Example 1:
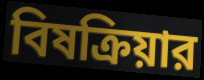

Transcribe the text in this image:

বিষক্রিয়ার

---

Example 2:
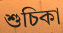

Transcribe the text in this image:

শুচিকা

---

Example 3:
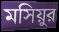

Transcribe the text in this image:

মসিয়ুর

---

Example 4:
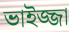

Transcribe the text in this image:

ভাইজ্জা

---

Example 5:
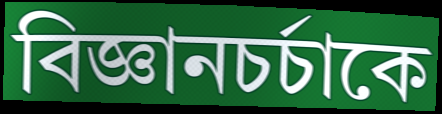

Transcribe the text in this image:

বিজ্ঞানচর্চাকে